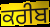
ਕਰੀਬ